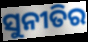
ସୁନୀତିର